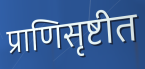
प्राणिसृष्टीत